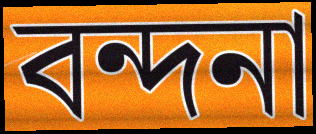
বন্দনা